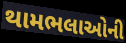
થામભલાઓની